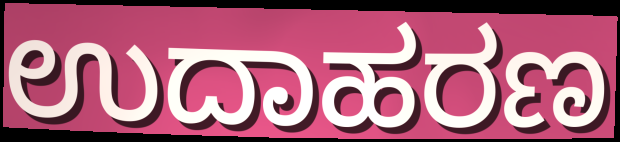
ಉದಾಹರಣ